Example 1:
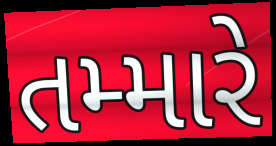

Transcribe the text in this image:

તમ્મારે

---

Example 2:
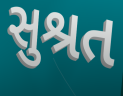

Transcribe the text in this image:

સુશ્રત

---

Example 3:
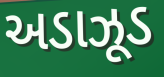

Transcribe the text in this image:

અડાઝૂડ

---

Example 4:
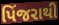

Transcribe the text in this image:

પિંજરાથી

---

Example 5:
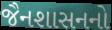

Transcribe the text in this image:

જૈનશાસનનો